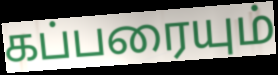
கப்பரையும்